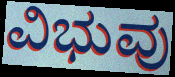
ವಿಭುವು